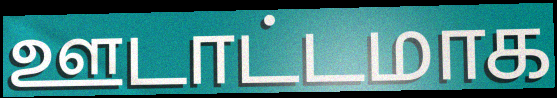
ஊடாட்டமாக